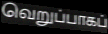
வெறுப்பாகப்